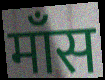
माँस